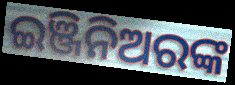
ଇଞ୍ଜିନିଅରଙ୍କ